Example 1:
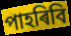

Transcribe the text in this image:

পাহৰিবি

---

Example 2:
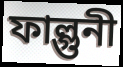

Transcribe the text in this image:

ফাল্গুনী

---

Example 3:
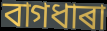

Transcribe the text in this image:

বাগধাৰা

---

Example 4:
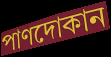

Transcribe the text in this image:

পাণদোকান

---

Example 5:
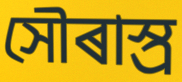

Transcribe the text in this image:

সৌৰাস্ত্ৰ